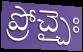
ప్రోచ్చైః